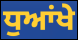
ਧੁਆਂਖੇ